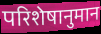
परिशेषानुमान